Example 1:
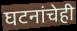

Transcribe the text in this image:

घटनांचेही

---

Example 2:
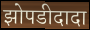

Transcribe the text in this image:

झोपडीदादा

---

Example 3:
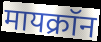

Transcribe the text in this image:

मायक्रॉन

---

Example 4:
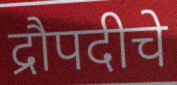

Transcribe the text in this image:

द्रौपदीचे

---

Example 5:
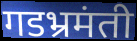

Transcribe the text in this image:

गडभ्रमंती